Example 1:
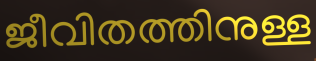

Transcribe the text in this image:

ജീവിതത്തിനുള്ള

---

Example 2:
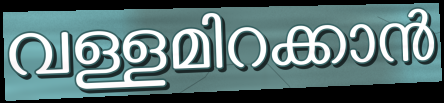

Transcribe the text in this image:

വള്ളമിറക്കാൻ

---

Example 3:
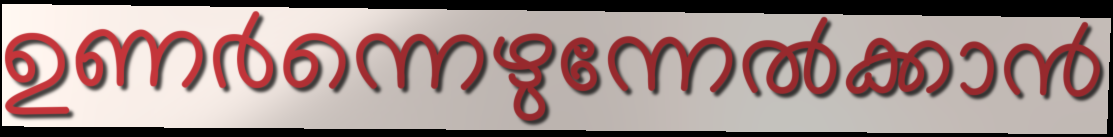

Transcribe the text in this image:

ഉണർന്നെഴുന്നേൽക്കാൻ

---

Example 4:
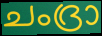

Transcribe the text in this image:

ചംദ്രാ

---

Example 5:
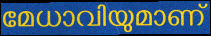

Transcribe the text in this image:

മേധാവിയുമാണ്